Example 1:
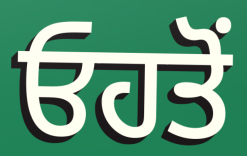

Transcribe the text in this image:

ਓਹਤੋਂ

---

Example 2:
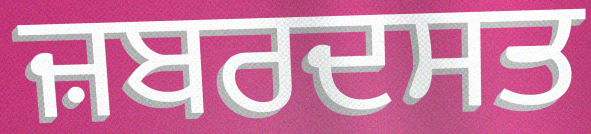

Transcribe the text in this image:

ਜ਼ਬਰਦਸਤ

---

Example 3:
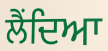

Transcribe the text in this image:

ਲੈਂਦਿਆ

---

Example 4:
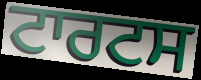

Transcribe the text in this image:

ਟਾਰਟਸ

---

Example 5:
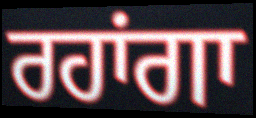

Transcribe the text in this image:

ਰਹਾਂਗਾ